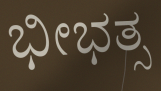
ಭೀಭತ್ಸ